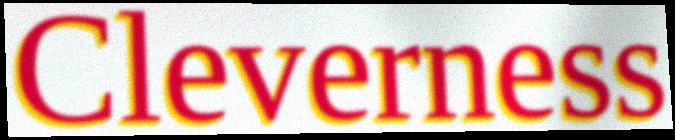
Cleverness